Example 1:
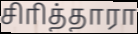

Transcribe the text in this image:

சிரித்தாரா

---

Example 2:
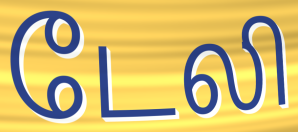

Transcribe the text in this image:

டேலி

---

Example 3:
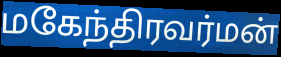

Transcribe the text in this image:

மகேந்திரவர்மன்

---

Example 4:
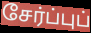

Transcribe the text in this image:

சேர்ப்புப்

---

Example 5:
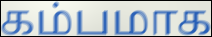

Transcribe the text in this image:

கம்பமாக